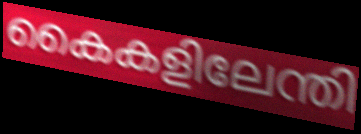
കൈകളിലേന്തി